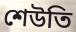
শেউতি